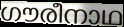
ഗൗരീനാഥ